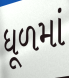
ધૂળમાં